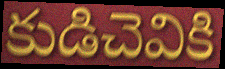
కుడిచెవికి